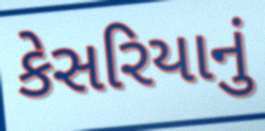
કેસરિયાનું